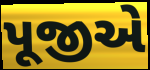
પૂજીએ